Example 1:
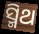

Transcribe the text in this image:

ସ୍ମିଥ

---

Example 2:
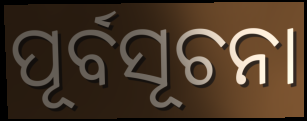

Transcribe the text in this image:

ପୂର୍ବସୂଚନା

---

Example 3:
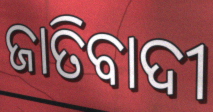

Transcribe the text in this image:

ଜାତିବାଦୀ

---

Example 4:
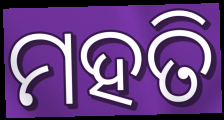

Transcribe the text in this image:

ମହତି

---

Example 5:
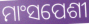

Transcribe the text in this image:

ମାଂସପେଶୀ